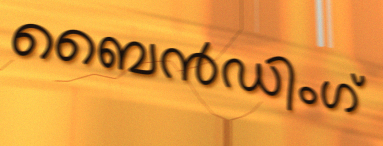
ബൈൻഡിംഗ്